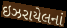
ઇઝરાયેલનાં